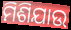
ମିଶିଯାଉ